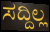
ಸದ್ದಿಲ್ಲ